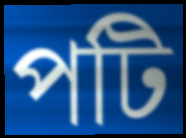
পটি